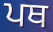
ਪਥ